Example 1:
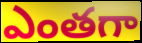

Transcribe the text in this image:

ఎంతగా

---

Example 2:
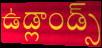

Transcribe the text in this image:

ఉడ్లాండ్స్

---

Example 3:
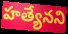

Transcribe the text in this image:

హత్యేనని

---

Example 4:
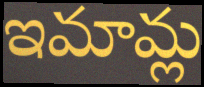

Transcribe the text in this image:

ఇమామ్ల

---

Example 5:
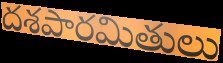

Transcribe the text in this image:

దశపారమితులు